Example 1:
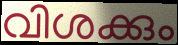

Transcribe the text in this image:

വിശക്കും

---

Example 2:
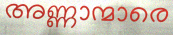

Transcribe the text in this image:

അണ്ണാന്മാരെ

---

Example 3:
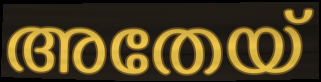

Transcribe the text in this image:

അതേയ്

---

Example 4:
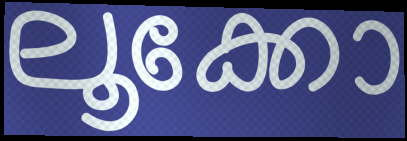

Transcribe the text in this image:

ലൂക്കോ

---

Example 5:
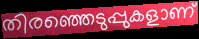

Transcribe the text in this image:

തിരഞ്ഞെടുപ്പുകളാണ്